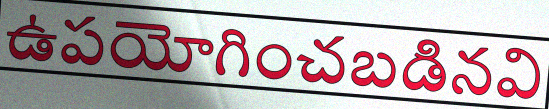
ఉపయోగించబడినవి